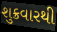
શુક્રવારથી